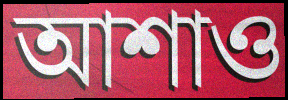
আশাও